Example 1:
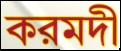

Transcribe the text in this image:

করমদী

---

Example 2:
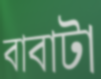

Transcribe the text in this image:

বাবাটা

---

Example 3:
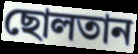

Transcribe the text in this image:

ছোলতান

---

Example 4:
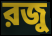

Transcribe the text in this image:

রজু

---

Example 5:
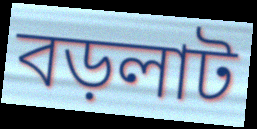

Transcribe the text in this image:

বড়লাট